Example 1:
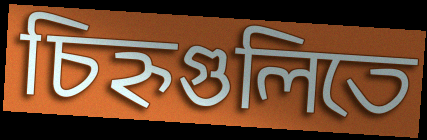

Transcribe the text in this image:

চিহ্নগুলিতে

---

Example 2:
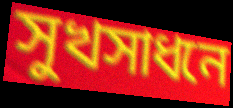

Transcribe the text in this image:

সুখসাধনে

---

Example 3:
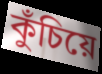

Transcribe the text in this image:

কুঁচিয়ে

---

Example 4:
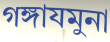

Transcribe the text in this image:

গঙ্গাযমুনা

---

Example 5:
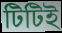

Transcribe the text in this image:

টিটিই